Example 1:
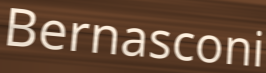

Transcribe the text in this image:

Bernasconi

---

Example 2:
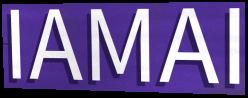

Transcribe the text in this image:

IAMAI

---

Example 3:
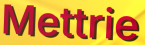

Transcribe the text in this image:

Mettrie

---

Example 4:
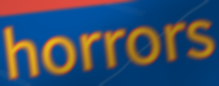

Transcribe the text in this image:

horrors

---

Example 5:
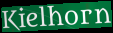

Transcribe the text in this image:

Kielhorn